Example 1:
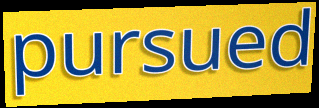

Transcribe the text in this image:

pursued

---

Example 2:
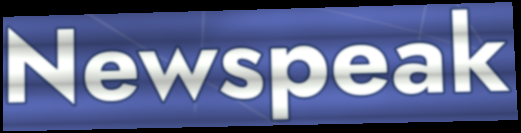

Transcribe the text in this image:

Newspeak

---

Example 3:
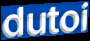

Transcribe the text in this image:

dutoi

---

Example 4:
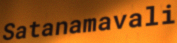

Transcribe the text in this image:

Satanamavali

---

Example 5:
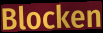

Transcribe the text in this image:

Blocken